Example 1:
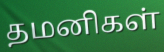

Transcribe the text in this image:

தமனிகள்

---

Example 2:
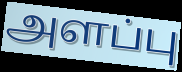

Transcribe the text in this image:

அளப்பு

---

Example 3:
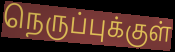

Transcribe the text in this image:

நெருப்புக்குள்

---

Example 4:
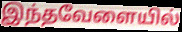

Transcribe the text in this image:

இந்தவேளையில்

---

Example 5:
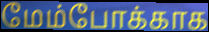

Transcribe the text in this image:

மேம்போக்காக